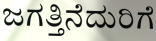
ಜಗತ್ತಿನೆದುರಿಗೆ